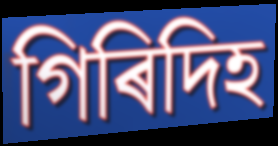
গিৰিদিহ